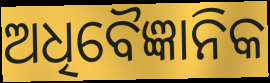
ଅଧିବୈଜ୍ଞାନିକ